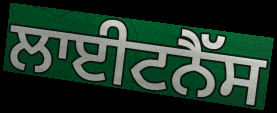
ਲਾਈਟਨੈੱਸ